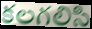
కలగలిసి